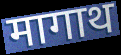
मागाथ